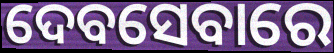
ଦେବସେବାରେ